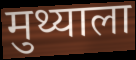
मुथ्याला